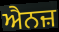
ਐਨਜ਼